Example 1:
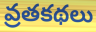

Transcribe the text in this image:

వ్రతకథలు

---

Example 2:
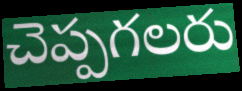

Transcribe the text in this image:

చెప్పగలరు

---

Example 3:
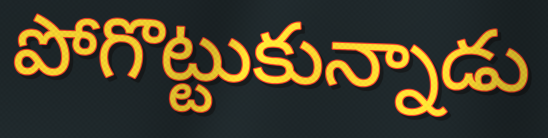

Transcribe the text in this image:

పోగొట్టుకున్నాడు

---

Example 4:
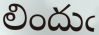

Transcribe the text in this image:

లిందుఁ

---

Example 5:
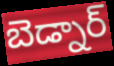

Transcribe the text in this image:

బెడ్నార్